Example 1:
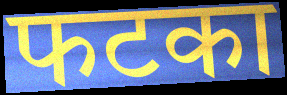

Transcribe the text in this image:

फटका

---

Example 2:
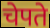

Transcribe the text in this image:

चेपते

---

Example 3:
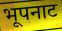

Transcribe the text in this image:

भूपनाट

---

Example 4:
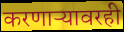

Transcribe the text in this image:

करणाऱ्यावरही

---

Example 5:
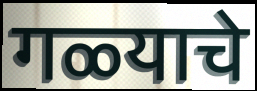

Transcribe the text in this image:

गळ्याचे